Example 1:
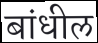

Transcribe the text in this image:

बांधील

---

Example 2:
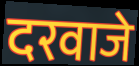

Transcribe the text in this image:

दरवाजे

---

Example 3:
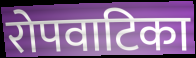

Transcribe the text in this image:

रोपवाटिका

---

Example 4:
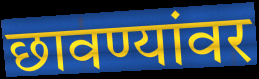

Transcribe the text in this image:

छावण्यांवर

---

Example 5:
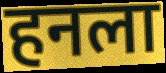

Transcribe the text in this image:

हनला